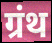
ग्रंथ